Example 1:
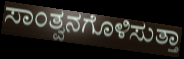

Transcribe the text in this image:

ಸಾಂತ್ವನಗೊಳಿಸುತ್ತಾ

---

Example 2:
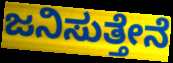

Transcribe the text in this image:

ಜನಿಸುತ್ತೇನೆ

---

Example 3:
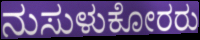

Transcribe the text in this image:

ನುಸುಳುಕೋರರು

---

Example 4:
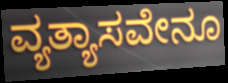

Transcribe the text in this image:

ವ್ಯತ್ಯಾಸವೇನೂ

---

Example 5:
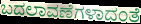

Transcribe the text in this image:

ಬದಲಾವಣೆಗಳಾದಂತೆ